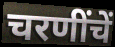
चरणींचें